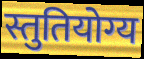
स्तुतियोग्य